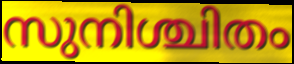
സുനിശ്ചിതം